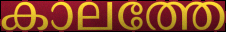
കാലത്തേ